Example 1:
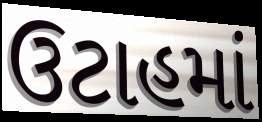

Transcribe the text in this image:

ઉટાહમાં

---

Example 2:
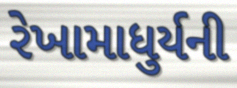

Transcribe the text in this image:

રેખામાધુર્યની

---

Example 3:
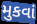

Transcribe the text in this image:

મુકવાં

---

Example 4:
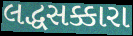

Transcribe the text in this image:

લદ્ધસક્કારા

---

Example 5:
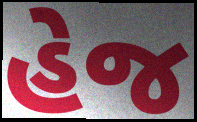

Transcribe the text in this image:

હેજ